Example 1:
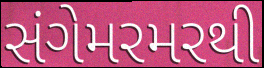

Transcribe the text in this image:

સંગેમરમરથી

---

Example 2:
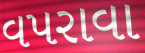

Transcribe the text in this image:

વપરાવા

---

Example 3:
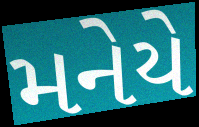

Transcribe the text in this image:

મનેયે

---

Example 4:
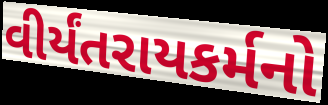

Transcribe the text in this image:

વીર્યંતરાયકર્મનો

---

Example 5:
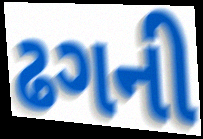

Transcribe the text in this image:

ઢગની